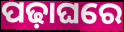
ପଢ଼ାଘରେ